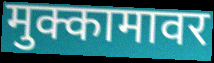
मुक्कामावर